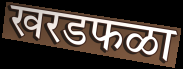
खरडफळा